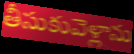
తీసుకువెళ్లాను